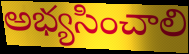
అభ్యసించాలి